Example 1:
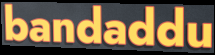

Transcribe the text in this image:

bandaddu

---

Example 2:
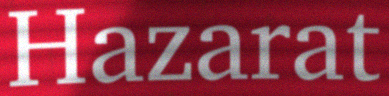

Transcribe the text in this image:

Hazarat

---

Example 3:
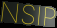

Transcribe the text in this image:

NSIP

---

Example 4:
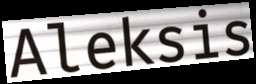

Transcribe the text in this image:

Aleksis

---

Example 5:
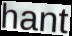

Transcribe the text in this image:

hant